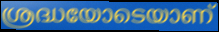
ശ്രദ്ധയോടെയാണ്